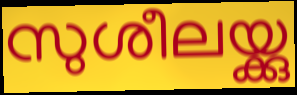
സുശീലയ്ക്കു